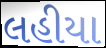
લહીયા